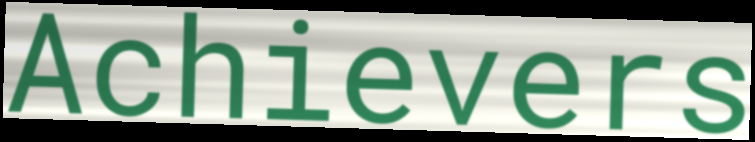
Achievers